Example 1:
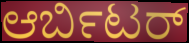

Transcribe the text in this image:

ಆರ್ಬಿಟರ್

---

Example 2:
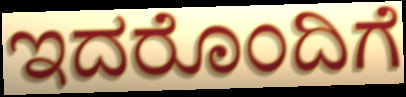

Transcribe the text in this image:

ಇದರೊಂದಿಗೆ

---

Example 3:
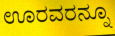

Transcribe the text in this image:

ಊರವರನ್ನೂ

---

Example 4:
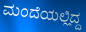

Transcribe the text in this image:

ಮಂದೆಯಲ್ಲಿದ್ದ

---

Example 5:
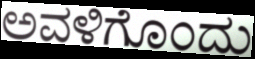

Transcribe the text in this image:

ಅವಳಿಗೊಂದು